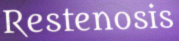
Restenosis